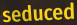
seduced